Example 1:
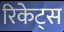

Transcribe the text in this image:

रिकेट्स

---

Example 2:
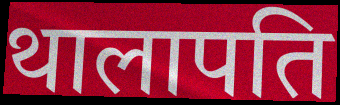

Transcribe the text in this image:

थालापति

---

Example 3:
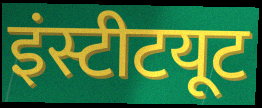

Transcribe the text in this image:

इंस्टीटयूट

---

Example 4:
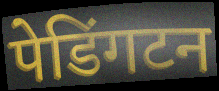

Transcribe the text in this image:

पेडिंगटन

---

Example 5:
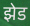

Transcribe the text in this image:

झेड